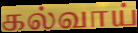
கல்வாய்